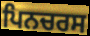
ਪਿਨਚਰਸ